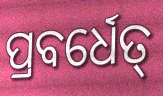
ପ୍ରବର୍ଧେତ୍